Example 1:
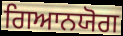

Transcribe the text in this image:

ਗਿਆਨਯੋਗ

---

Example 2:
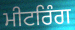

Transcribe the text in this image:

ਮੀਟਰਿੰਗ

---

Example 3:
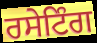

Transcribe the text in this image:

ਰਸੇਟਿੰਗ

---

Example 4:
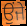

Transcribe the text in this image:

ਉਂਜੇ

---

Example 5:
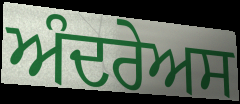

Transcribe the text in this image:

ਅੰਦਰੇਅਸ